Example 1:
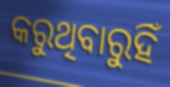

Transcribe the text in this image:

କରୁଥିବାରୁହିଁ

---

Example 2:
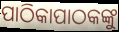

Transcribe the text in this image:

ପାଠିକାପାଠକଙ୍କୁ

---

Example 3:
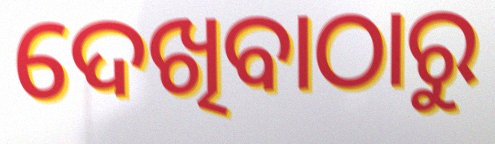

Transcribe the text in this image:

ଦେଖିବାଠାରୁ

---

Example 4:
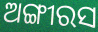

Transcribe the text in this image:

ଅଙ୍ଗୀରସ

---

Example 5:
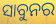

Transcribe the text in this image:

ସାବୁନର